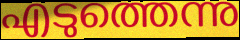
എടുത്തെന്നു